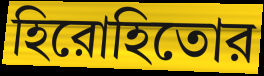
হিরোহিতোর